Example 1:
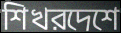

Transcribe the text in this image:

শিখরদেশে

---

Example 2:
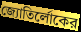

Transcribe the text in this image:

জ্যোতির্লোকের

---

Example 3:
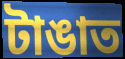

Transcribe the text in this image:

টাঙাত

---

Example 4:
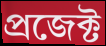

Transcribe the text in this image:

প্রজেক্ট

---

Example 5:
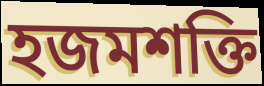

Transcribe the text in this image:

হজমশক্তি